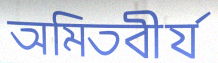
অমিতবীর্য